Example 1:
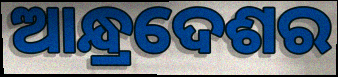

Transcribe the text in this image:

ଆନ୍ଧ୍ରଦେଶର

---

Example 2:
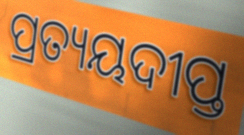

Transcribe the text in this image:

ପ୍ରତ୍ୟୟଦୀପ୍ତ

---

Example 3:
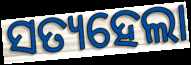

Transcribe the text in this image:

ସତ୍ୟହେଲା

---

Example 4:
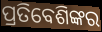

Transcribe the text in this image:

ପ୍ରତିବେଶିଙ୍କର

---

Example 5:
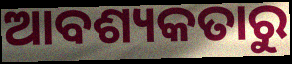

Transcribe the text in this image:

ଆବଶ୍ୟକତାରୁ